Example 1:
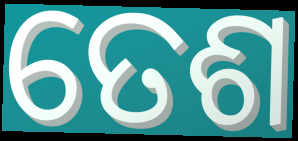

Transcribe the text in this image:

ତେଶ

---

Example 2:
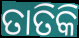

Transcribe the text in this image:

ତାତିକି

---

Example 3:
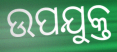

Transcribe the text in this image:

ଉପଯୁକ୍ତ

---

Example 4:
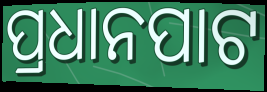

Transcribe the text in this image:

ପ୍ରଧାନପାଟ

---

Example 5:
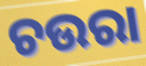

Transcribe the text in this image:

ଚଉରା